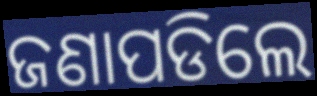
ଜଣାପଡିଲେ